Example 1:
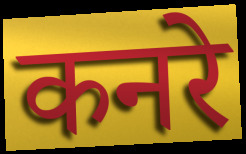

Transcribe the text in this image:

कनरे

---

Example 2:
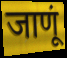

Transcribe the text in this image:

जाणूं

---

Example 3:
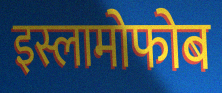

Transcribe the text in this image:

इस्लामोफोब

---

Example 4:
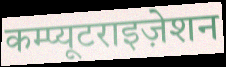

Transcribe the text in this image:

कम्प्यूटराइज़ेशन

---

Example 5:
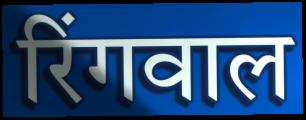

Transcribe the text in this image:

रिंगवाल